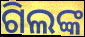
ଗିଲଙ୍କ